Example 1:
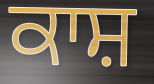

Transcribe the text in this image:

ਕਾਸ਼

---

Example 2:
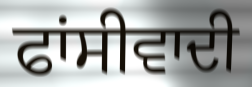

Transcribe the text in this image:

ਫਾਂਸੀਵਾਦੀ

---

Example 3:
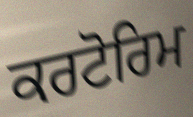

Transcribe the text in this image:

ਕਰਟੋਰਿਮ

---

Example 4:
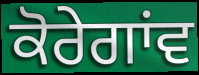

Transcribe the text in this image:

ਕੋਰੇਗਾਂਵ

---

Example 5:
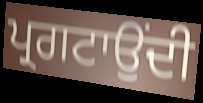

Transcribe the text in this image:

ਪ੍ਰਗਟਾਉਂਦੀ